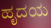
ಹೃದಯ